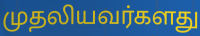
முதலியவர்களது